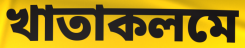
খাতাকলমে